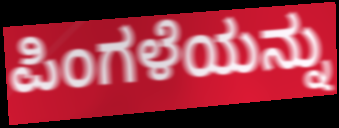
ಪಿಂಗಳೆಯನ್ನು